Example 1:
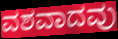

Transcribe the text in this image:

ವಶವಾದವು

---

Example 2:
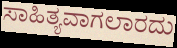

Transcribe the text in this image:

ಸಾಹಿತ್ಯವಾಗಲಾರದು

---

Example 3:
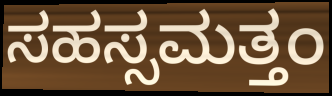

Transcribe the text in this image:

ಸಹಸ್ಸಮತ್ತಂ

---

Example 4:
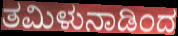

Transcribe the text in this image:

ತಮಿಳುನಾಡಿಂದ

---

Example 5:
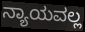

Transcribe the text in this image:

ನ್ಯಾಯವಲ್ಲ